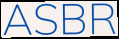
ASBR